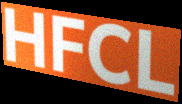
HFCL